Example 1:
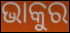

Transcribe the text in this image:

ଭାକୁର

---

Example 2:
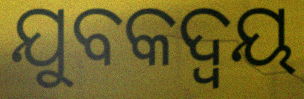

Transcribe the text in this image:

ଯୁବକଦ୍ୱୟ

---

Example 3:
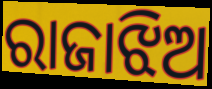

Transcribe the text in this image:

ରାଜାଝିଅ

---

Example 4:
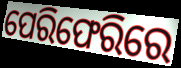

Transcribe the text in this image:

ପେରିଫେରିରେ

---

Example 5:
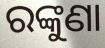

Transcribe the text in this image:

ରଙ୍କୁଣା